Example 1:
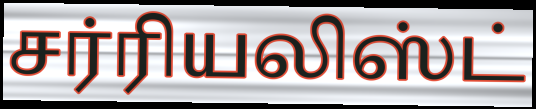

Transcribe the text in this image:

சர்ரியலிஸ்ட்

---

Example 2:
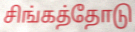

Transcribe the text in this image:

சிங்கத்தோடு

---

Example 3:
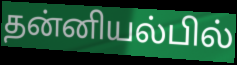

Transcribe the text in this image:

தன்னியல்பில்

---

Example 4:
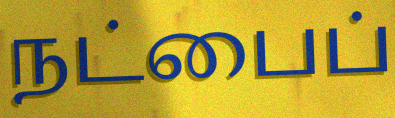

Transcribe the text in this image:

நட்பைப்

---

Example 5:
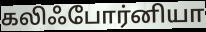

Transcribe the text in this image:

கலிஃபோர்னியா